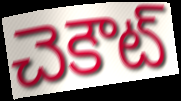
చెకౌట్